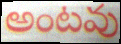
అంటవు